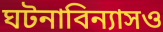
ঘটনাবিন্যাসও